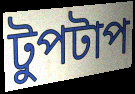
টুপটাপ